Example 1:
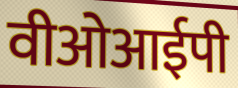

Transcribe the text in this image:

वीओआईपी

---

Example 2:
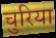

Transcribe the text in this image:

चुरिया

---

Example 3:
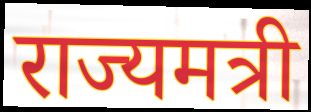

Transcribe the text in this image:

राज्यमत्री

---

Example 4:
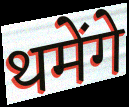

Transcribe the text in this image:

थमेंगे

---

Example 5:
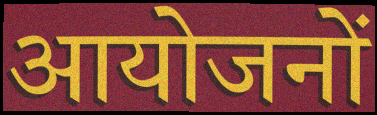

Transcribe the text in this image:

आयोजनों